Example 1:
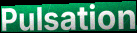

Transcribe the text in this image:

Pulsation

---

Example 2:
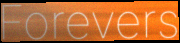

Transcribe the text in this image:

Forevers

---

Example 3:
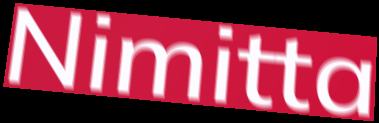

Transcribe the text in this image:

Nimitta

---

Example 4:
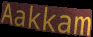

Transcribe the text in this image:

Aakkam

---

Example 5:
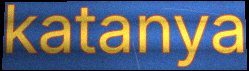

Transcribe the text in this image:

katanya